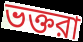
ভক্তরা